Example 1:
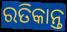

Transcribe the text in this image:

ରତିକାନ୍ତ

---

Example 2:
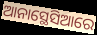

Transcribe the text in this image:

ଆନାସ୍ଥେସିଆରେ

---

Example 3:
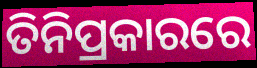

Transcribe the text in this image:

ତିନିପ୍ରକାରରେ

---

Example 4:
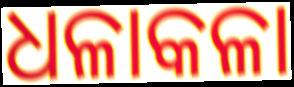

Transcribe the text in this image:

ଧଳାକଳା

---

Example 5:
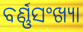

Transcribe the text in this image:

ବର୍ଣ୍ଣସଂଖ୍ୟା